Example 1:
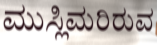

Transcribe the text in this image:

ಮುಸ್ಲಿಮರಿರುವ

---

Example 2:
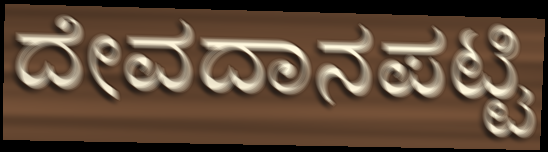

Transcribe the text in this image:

ದೇವದಾನಪಟ್ಟಿ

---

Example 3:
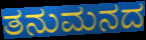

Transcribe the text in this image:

ತನುಮನದ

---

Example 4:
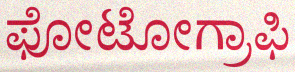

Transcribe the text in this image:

ಫೋಟೋಗ್ರಾಫಿ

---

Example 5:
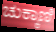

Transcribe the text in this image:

ಚುಕ್ಕಾಣಿ